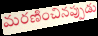
మరణించినప్పుడు